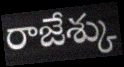
రాజేశ్కు